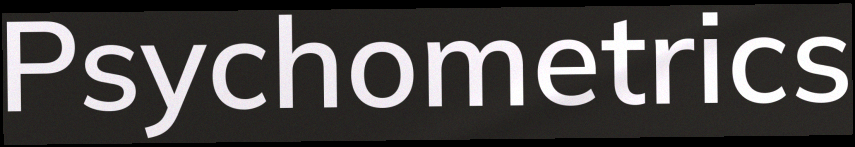
Psychometrics